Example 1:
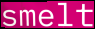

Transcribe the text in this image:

smelt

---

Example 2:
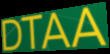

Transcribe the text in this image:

DTAA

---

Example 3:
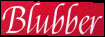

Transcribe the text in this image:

Blubber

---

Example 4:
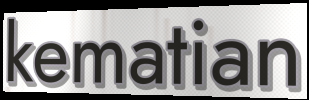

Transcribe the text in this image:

kematian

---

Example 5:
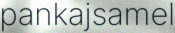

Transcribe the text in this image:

pankajsamel